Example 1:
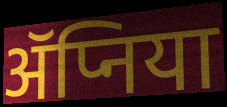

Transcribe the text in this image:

ॲप्निया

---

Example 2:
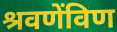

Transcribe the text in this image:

श्रवणेंविण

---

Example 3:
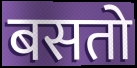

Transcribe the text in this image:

बसतो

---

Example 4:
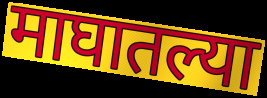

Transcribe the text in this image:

माघातल्या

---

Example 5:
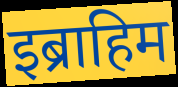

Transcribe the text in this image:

इब्राहिम